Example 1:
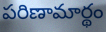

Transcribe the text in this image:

పరిణామార్థం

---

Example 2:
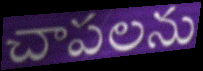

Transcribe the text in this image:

చాపలను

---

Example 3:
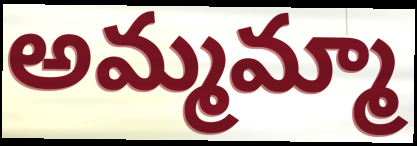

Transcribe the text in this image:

అమ్మమ్మా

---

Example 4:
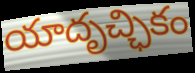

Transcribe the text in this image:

యాదృచ్ఛికం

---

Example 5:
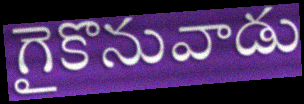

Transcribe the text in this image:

గైకొనువాడు